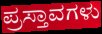
ಪ್ರಸ್ತಾವಗಳು